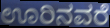
ಊರಿನವರೆ